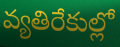
వ్యతిరేకుల్లో